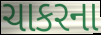
ચાકરના